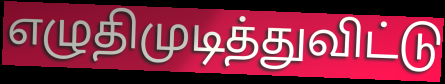
எழுதிமுடித்துவிட்டு